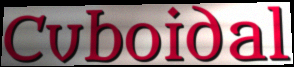
Cuboidal